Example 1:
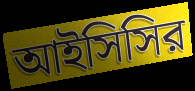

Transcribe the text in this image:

আইসিসির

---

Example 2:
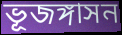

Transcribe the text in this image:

ভূজঙ্গাসন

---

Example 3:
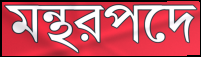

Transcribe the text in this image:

মন্থরপদে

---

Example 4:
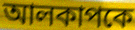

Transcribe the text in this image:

আলকাপকে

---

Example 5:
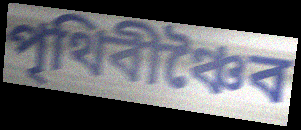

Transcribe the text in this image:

পৃথিবীঞ্চৈব